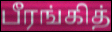
பீரங்கித்